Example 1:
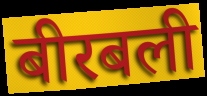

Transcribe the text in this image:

बीरबली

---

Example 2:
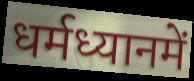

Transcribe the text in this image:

धर्मध्यानमें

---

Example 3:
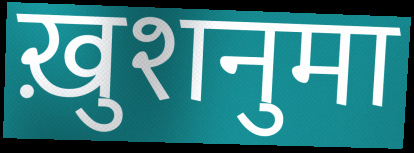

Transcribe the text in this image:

ख़ुशनुमा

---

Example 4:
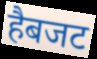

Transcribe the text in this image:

हैबजट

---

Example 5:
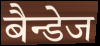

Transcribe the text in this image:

बैन्डेज